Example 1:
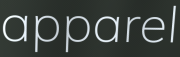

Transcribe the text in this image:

apparel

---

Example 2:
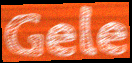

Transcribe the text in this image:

Gele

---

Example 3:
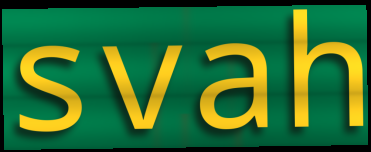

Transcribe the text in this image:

svah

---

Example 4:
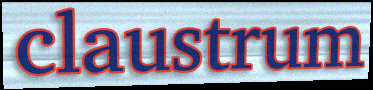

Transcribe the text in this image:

claustrum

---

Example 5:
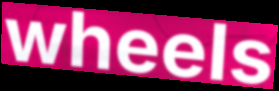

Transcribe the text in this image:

wheels